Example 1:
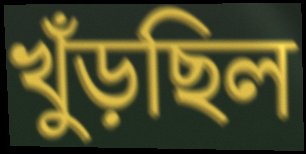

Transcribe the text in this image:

খুঁড়ছিল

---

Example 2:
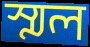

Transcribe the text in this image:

স্মল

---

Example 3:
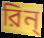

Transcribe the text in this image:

রিন্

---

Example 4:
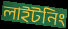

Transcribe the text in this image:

লাইটনিং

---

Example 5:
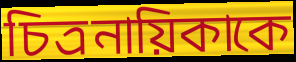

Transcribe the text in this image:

চিত্রনায়িকাকে